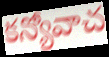
కన్యోవాచ